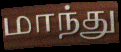
மாந்து